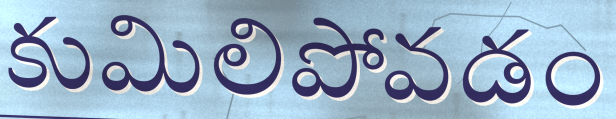
కుమిలిపోవడం